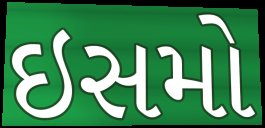
ઇસમો